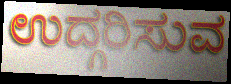
ಉದ್ಗರಿಸುವ